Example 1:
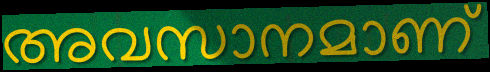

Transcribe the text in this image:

അവസാനമാണ്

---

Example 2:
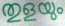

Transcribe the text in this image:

തുളയും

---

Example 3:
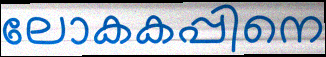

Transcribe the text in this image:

ലോകകപ്പിനെ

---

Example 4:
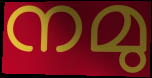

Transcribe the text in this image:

നമു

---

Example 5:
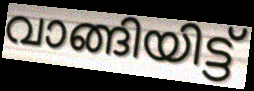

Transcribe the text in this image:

വാങ്ങിയിട്ട്